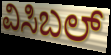
ವಿಸಿಬಲ್